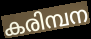
കരിമ്പന